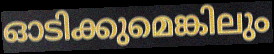
ഓടിക്കുമെങ്കിലും